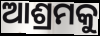
ଆଶ୍ରମକୁ